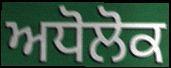
ਅਧੋਲੋਕ